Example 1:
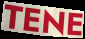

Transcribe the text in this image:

TENE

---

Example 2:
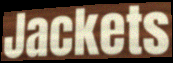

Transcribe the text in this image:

Jackets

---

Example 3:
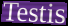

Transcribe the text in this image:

Testis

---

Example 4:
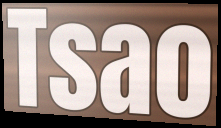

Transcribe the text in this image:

Tsao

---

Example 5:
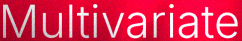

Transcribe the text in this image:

Multivariate